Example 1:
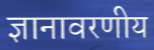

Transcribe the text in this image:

ज्ञानावरणीय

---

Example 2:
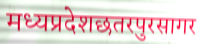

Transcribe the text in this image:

मध्यप्रदेशछतरपुरसागर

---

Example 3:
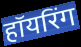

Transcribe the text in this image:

हॉयरिंग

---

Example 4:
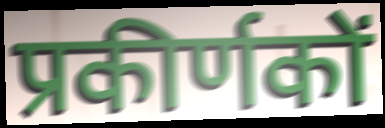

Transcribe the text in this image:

प्रकीर्णकों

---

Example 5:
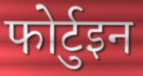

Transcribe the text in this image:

फोर्टुइन